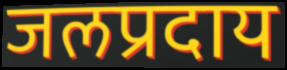
जलप्रदाय